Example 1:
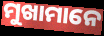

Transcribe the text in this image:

ମୁଖାମାନେ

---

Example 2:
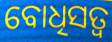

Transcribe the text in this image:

ବୋଧିସତ୍ବ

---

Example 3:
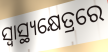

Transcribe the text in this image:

ସ୍ୱାସ୍ଥ୍ୟକ୍ଷେତ୍ରରେ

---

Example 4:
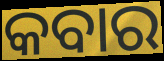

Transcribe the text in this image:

କବାର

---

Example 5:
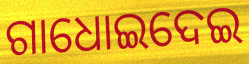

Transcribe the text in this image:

ଗାଧୋଇଦେଇ